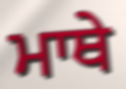
ਮਾਥੇ